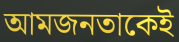
আমজনতাকেই